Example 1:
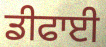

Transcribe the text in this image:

ਡੀਫਾਈ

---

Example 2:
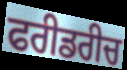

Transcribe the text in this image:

ਫਰੀਡਰੀਚ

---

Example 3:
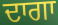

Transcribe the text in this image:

ਦਾਗਾ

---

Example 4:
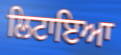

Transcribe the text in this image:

ਲਿਟਾਇਆ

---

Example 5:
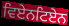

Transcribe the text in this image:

ਵਿਏਨਟਿਏਨ